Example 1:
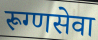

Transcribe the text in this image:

रूग्णसेवा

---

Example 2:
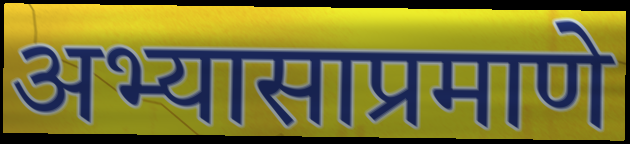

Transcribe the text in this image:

अभ्यासाप्रमाणे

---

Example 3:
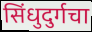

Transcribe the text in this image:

सिंधुदुर्गचा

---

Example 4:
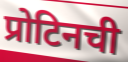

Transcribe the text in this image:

प्रोटिनची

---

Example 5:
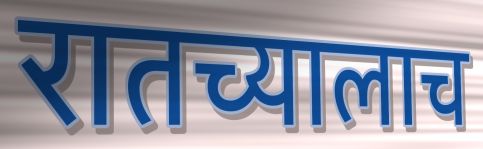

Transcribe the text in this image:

रातच्यालाच